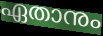
ഏതാനും